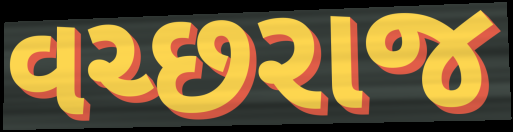
વચ્છરાજ